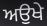
ਅਉਖੇ